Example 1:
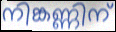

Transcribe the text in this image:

നിങ്കണ്ണിന്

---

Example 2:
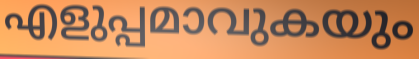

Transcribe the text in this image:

എളുപ്പമാവുകയും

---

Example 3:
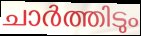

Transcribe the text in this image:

ചാർത്തിടും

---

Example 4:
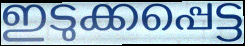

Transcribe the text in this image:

ഇടുക്കപ്പെട്ട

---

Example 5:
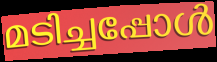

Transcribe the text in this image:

മടിച്ചപ്പോൾ